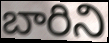
బారిని